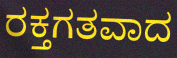
ರಕ್ತಗತವಾದ